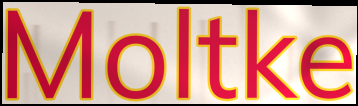
Moltke